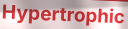
Hypertrophic